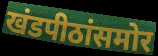
खंडपीठांसमोर